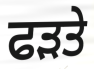
ਫੜਤੇ